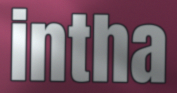
intha